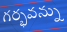
గర్భవన్ను